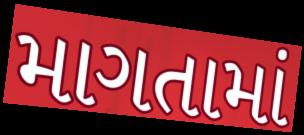
માગતામાં